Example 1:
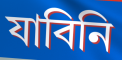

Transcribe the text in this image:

যাবিনি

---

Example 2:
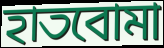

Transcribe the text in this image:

হাতবোমা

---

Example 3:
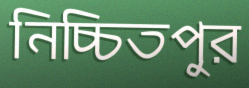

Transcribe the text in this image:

নিচ্চিতপুর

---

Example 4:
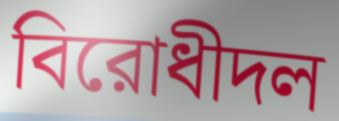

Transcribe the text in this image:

বিরোধীদল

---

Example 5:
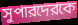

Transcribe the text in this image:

সুপারদেরকে